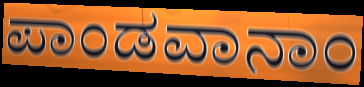
ಪಾಂಡವಾನಾಂ